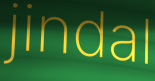
jindal